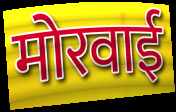
मोरवाई